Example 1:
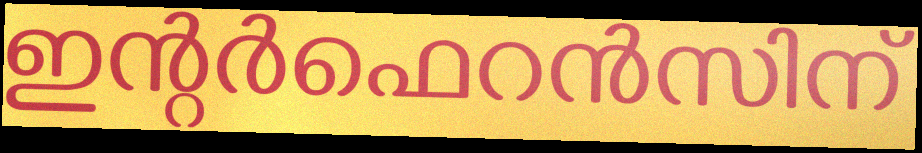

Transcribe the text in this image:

ഇന്റർഫെറൻസിന്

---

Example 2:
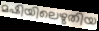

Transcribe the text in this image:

മഷിയിലെഴുതിയ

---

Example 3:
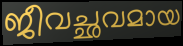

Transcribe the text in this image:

ജീവച്ഛവമായ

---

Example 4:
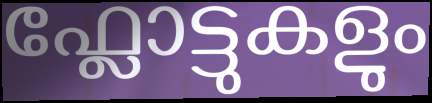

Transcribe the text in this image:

ഫ്ലോട്ടുകളും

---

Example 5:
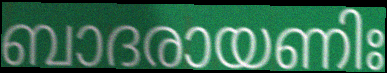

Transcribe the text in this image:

ബാദരായണിഃ